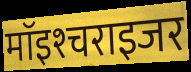
मॉइश्चराइजर